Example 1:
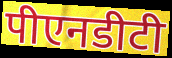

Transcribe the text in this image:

पीएनडीटी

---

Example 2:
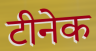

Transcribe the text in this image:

टीनेक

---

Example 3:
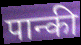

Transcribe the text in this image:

पान्की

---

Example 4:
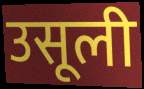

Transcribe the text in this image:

उसूली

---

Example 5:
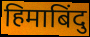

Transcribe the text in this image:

हिमाबिंदु